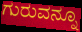
ಗುರುವನ್ನೂ